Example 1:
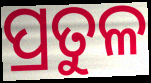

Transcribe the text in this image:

ପ୍ରତୁଳ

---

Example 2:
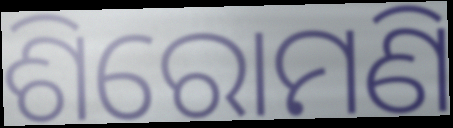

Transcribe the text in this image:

ଶିରୋମଣି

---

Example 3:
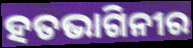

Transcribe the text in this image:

ହତଭାଗିନୀର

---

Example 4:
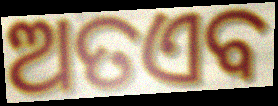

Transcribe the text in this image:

ଅତଏବ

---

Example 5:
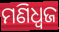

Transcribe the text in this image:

ମଣିଧ୍ୱଜ